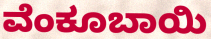
ವೆಂಕೂಬಾಯಿ